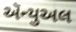
ઍન્યુઅલ